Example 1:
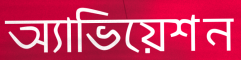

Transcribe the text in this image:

অ্যাভিয়েশন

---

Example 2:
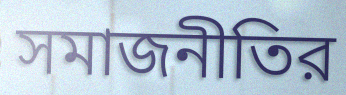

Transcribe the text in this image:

সমাজনীতির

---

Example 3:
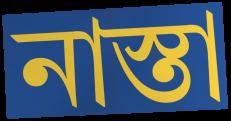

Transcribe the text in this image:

নাস্তা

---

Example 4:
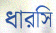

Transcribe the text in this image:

ধারসি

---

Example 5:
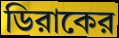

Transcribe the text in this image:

ডিরাকের